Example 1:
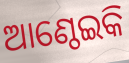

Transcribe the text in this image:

ଆଣ୍ଠେଇକି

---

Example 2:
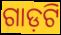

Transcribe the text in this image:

ଗାଡ଼ଟି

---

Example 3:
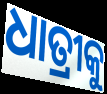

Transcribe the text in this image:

ଧାତ୍ରୀକୁ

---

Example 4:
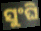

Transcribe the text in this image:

ସୁଂଘି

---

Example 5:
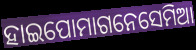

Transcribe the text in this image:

ହାଇପୋମାଗନେସେମିଆ